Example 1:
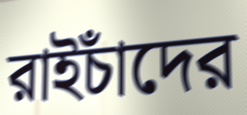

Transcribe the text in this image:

রাইচাঁদের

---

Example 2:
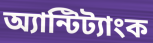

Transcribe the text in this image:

অ্যান্টিট্যাংক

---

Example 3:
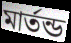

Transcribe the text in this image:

মার্তন্ড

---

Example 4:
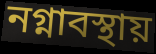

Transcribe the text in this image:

নগ্নাবস্থায়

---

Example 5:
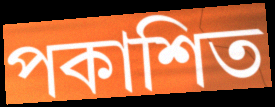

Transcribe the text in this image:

পকাশিত